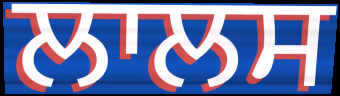
ਲਾਲਸ